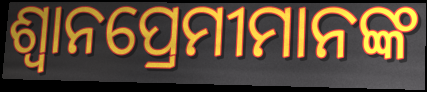
ଶ୍ଵାନପ୍ରେମୀମାନଙ୍କ